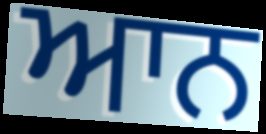
ਆਨ